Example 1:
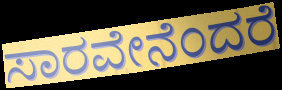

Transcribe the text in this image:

ಸಾರವೇನೆಂದರೆ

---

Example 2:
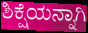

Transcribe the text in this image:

ಶಿಕ್ಷೆಯನ್ನಾಗಿ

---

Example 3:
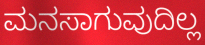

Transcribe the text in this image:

ಮನಸಾಗುವುದಿಲ್ಲ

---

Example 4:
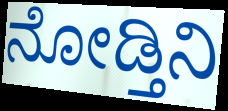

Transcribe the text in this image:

ನೋಡ್ತಿನಿ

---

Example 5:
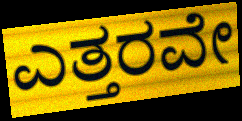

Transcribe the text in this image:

ಎತ್ತರವೇ